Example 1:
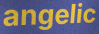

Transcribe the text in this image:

angelic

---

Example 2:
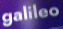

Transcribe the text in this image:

galileo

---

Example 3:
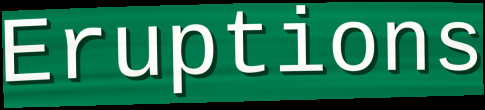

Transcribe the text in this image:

Eruptions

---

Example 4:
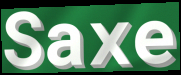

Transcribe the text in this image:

Saxe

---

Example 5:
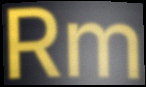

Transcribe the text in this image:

Rm